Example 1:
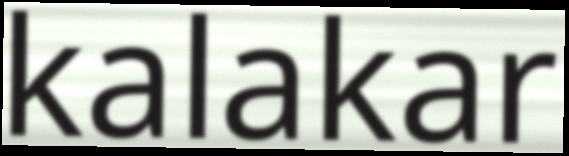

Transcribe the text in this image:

kalakar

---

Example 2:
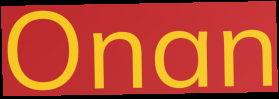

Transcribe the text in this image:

Onan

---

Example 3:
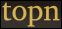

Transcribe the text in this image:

topn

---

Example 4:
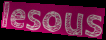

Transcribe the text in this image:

Iesous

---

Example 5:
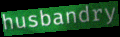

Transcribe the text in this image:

husbandry